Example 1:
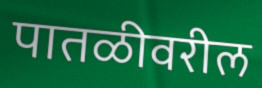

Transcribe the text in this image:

पातळीवरील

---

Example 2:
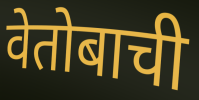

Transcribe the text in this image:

वेतोबाची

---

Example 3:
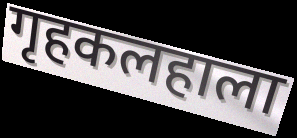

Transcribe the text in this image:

गृहकलहाला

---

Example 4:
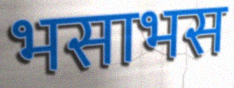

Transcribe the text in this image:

भसाभस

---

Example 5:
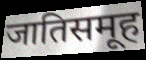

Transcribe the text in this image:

जातिसमूह